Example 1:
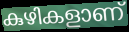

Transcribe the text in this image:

കുഴികളാണ്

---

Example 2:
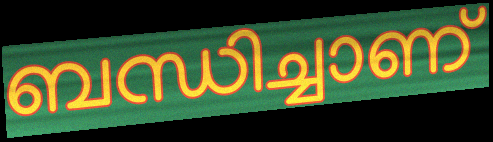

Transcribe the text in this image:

ബന്ധിച്ചാണ്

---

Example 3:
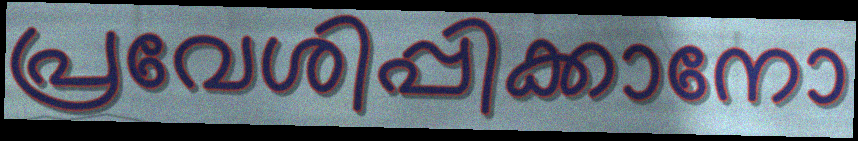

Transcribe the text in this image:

പ്രവേശിപ്പിക്കാനോ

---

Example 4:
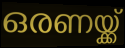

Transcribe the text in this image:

ഒരണയ്ക്ക്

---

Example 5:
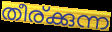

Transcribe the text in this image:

തീര്ക്കുന്ന